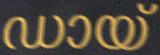
ഡായ്